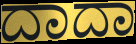
ದಾದಾ